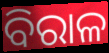
ବିରାଳ